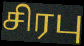
சிரபு